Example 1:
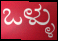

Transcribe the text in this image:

ಒಳ್ಳು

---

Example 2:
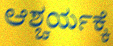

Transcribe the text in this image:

ಆಶ್ಚರ್ಯಕ್ಕೆ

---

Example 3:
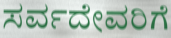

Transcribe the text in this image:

ಸರ್ವದೇವರಿಗೆ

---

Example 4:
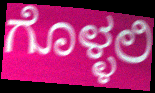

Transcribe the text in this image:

ಗೊಳ್ಳಲಿ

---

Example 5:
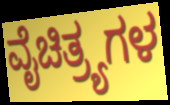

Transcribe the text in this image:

ವೈಚಿತ್ರ್ಯಗಳ